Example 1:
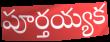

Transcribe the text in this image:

పూర్తయ్యక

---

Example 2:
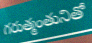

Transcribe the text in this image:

గరుత్మంతునితో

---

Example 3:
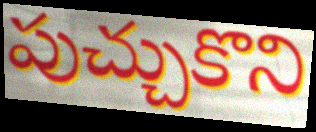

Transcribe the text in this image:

పుచ్చుకొని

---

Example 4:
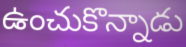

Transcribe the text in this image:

ఉంచుకొన్నాడు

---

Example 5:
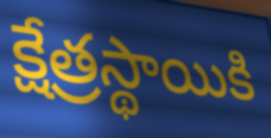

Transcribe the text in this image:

క్షేత్రస్థాయికి